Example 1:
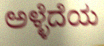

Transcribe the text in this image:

ಅಳ್ಳೆದೆಯ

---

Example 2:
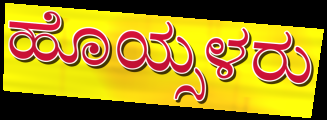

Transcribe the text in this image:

ಹೊಯ್ಸಳರು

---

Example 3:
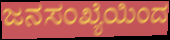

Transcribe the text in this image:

ಜನಸಂಖ್ಯೆಯಿಂದ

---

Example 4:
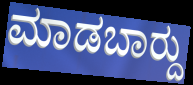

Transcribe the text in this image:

ಮಾಡಬಾರ್‍ದು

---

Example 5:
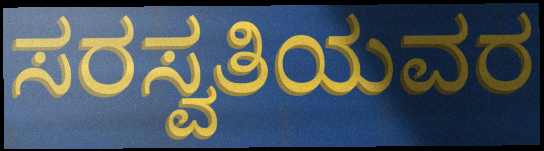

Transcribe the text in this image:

ಸರಸ್ವತಿಯವರ